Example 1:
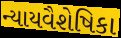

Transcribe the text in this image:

ન્યાયવૈશેષિકા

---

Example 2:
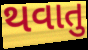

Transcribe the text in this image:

થવાતુ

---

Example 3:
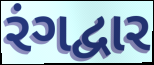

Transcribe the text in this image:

રંગદ્વાર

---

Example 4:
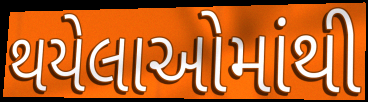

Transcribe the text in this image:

થયેલાઓમાંથી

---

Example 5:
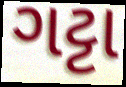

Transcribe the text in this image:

ગટ્ટા